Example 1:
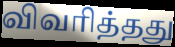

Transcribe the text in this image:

விவரித்தது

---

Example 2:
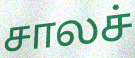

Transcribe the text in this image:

சாலச்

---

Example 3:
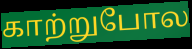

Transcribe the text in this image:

காற்றுபோல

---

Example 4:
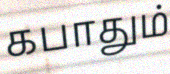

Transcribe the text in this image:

கபாதும்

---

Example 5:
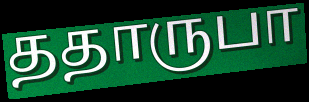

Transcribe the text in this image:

ததாருபா